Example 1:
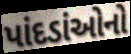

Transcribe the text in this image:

પાંદડાંઓનો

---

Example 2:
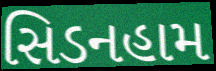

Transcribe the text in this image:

સિડનહામ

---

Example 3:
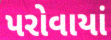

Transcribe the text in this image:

પરોવાયાં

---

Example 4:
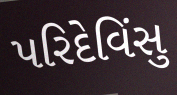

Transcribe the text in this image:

પરિદેવિંસુ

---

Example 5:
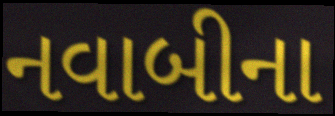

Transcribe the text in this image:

નવાબીના